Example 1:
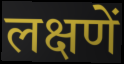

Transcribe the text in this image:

लक्षणें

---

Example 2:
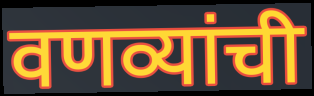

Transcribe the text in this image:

वणव्यांची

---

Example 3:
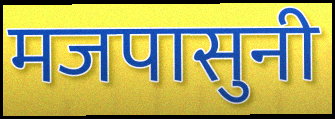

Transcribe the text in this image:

मजपासुनी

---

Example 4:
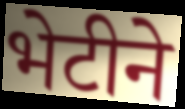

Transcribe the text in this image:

भेटीने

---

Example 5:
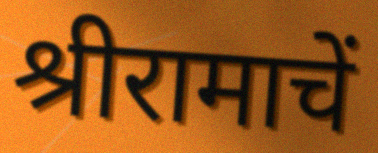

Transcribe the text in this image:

श्रीरामाचें